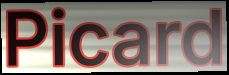
Picard